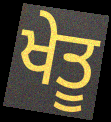
ਖੇਤੂ